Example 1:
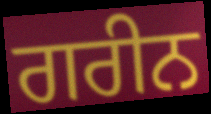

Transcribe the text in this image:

ਗਰੀਨ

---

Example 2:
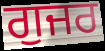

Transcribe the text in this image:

ਗੁਜਰ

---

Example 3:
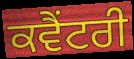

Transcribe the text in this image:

ਕਵੈਂਟਰੀ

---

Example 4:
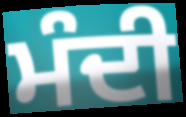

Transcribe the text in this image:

ਮੰਦੀ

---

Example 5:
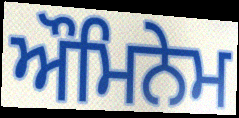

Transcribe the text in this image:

ਔਮਿਨੇਮ